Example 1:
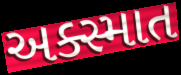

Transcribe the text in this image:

અક્સ્માત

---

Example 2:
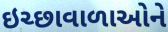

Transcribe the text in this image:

ઇચ્છાવાળાઓને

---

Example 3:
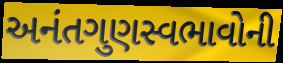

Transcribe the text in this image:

અનંતગુણસ્વભાવોની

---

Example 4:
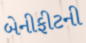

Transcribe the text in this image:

બેનીફીટની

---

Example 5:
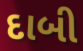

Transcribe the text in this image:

દાબી